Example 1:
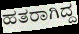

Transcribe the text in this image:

ಹತರಾಗಿದ್ದ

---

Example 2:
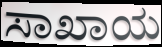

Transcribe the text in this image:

ಸಾಖಾಯ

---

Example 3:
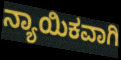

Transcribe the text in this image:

ನ್ಯಾಯಿಕವಾಗಿ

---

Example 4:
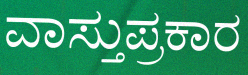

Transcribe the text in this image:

ವಾಸ್ತುಪ್ರಕಾರ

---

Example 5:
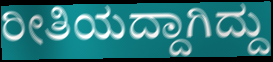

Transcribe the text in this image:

ರೀತಿಯದ್ದಾಗಿದ್ದು